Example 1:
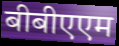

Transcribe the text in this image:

बीबीएएम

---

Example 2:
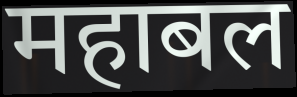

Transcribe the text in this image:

महाबल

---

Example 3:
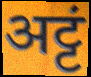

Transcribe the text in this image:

अट्टं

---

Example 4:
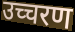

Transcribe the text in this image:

उच्चरण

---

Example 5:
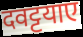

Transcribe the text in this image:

दवट्टयाए